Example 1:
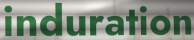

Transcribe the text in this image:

induration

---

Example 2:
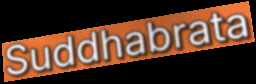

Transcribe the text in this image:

Suddhabrata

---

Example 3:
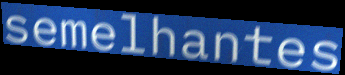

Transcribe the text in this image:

semelhantes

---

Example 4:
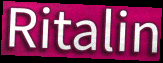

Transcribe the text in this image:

Ritalin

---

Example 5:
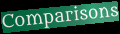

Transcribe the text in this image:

Comparisons